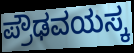
ಪ್ರೌಢವಯಸ್ಕ